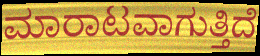
ಮಾರಾಟವಾಗುತ್ತಿದೆ